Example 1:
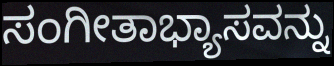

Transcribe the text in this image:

ಸಂಗೀತಾಭ್ಯಾಸವನ್ನು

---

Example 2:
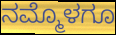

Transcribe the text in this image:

ನಮ್ಮೊಳಗೂ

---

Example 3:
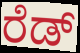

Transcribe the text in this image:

ರೆಡ್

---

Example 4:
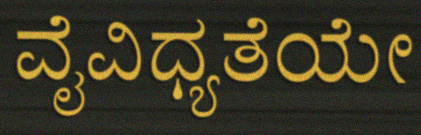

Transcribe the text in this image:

ವೈವಿಧ್ಯತೆಯೇ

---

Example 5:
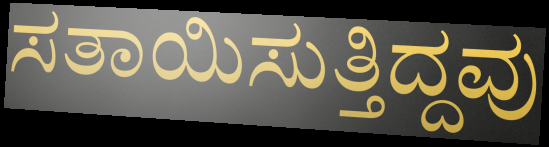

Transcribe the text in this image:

ಸತಾಯಿಸುತ್ತಿದ್ದವು